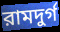
রামদুর্গ